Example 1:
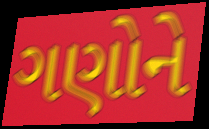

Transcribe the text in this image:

ગણોને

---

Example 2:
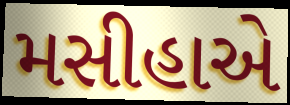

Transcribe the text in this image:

મસીહાએ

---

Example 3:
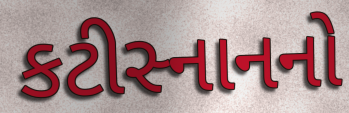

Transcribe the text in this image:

કટીસ્નાનનો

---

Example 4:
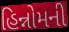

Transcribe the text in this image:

હિન્નોમની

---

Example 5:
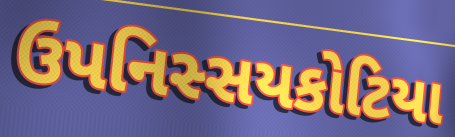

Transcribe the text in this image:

ઉપનિસ્સયકોટિયા